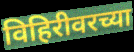
विहिरीवरच्या